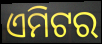
ଏମିଟର